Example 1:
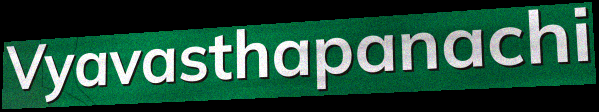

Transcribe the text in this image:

Vyavasthapanachi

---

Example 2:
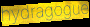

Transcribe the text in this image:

hydragogue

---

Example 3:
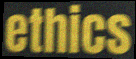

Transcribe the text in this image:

ethics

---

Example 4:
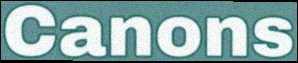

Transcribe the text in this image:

Canons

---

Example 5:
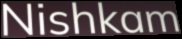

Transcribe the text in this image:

Nishkam